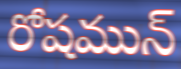
రోషమున్